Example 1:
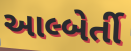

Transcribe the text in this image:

આલ્બેર્તી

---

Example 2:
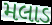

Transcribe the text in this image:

મલાડ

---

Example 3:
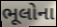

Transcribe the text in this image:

ભૂલોના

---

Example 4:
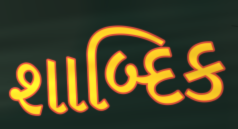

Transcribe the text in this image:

શાબ્દિક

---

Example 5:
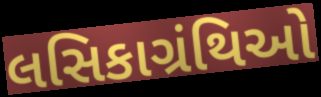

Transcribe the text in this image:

લસિકાગ્રંથિઓ